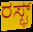
ರಸ್ಟ್